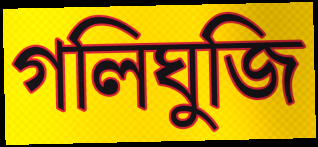
গলিঘুজি